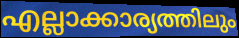
എല്ലാക്കാര്യത്തിലും